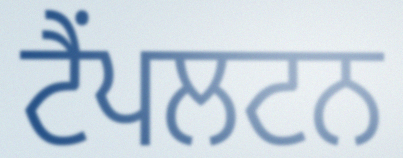
ਟੈਂਪਲਟਨ